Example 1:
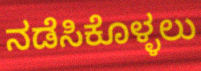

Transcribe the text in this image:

ನಡೆಸಿಕೊಳ್ಳಲು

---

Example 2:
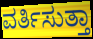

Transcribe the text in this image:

ವರ್ತಿಸುತ್ತಾ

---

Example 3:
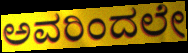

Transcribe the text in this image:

ಅವರಿಂದಲೇ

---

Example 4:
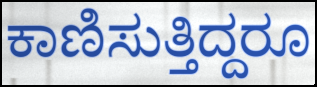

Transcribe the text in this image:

ಕಾಣಿಸುತ್ತಿದ್ದರೂ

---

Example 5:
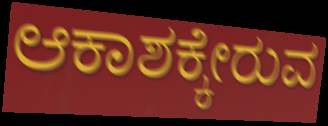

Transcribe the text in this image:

ಆಕಾಶಕ್ಕೇರುವ